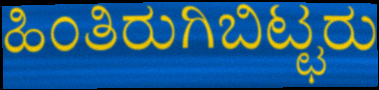
ಹಿಂತಿರುಗಿಬಿಟ್ಟರು